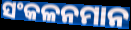
ସଂକଳନମାନ